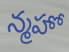
న్మహో